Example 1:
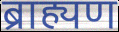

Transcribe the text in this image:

ब्राह्यण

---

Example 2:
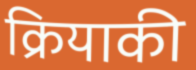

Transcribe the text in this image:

क्रियाकी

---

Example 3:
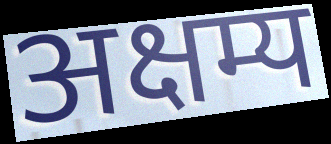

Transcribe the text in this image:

अक्षम्‍य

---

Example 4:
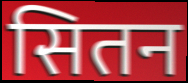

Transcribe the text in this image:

सितन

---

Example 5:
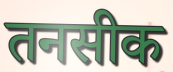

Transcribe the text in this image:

तनसीक